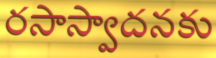
రసాస్వాదనకు